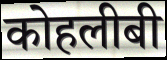
कोहलीबी